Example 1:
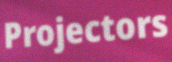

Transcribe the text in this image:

Projectors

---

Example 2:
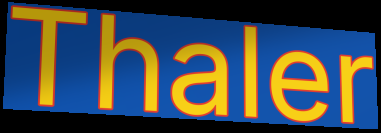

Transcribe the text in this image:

Thaler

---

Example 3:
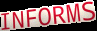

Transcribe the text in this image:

INFORMS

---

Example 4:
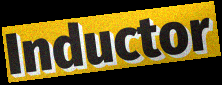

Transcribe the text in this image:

Inductor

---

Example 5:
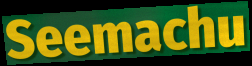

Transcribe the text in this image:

Seemachu